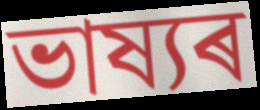
ভাষ্যৰ